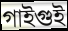
গাইগুই